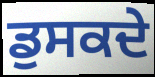
ਡੁਸਕਦੇ